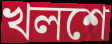
খলশে